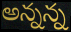
అన్నన్న